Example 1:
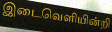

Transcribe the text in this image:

இடைவெளியின்றி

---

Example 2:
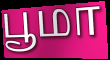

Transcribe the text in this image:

பூமா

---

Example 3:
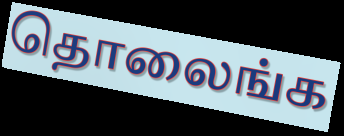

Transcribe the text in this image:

தொலைங்க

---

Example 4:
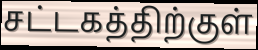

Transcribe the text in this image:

சட்டகத்திற்குள்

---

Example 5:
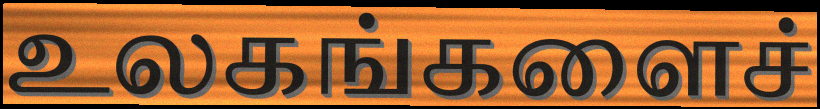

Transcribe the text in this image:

உலகங்களைச்